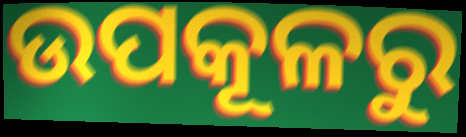
ଉପକୂଳରୁ